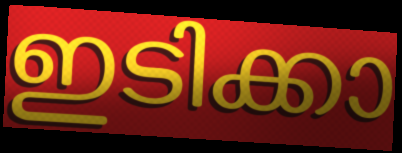
ഇടിക്കാ